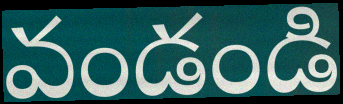
వండండి